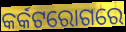
କର୍କଟରୋଗରେ